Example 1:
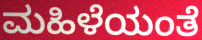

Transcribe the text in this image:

ಮಹಿಳೆಯಂತೆ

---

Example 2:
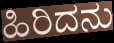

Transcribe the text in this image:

ಹಿರಿದನು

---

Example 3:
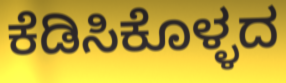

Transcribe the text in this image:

ಕೆಡಿಸಿಕೊಳ್ಳದ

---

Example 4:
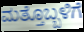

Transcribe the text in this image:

ಮತ್ತೊಬ್ಬಳಿಗೆ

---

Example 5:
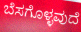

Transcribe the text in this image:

ಬೆಸಗೊಳ್ಳವುದೆ